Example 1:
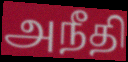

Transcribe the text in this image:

அநீதி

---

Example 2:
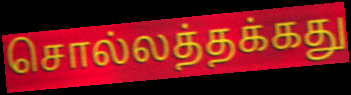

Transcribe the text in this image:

சொல்லத்தக்கது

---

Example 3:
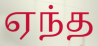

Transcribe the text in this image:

ஏந்த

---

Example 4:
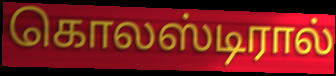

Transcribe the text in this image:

கொலஸ்டிரால்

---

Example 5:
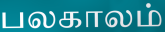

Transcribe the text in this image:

பலகாலம்